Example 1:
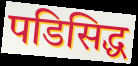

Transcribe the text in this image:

पडिसिद्ध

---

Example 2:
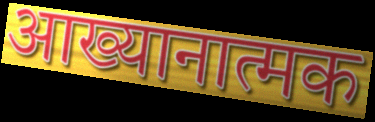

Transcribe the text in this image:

आख्यानात्मक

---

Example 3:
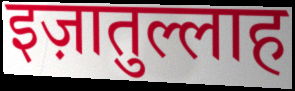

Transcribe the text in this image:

इज़ातुल्लाह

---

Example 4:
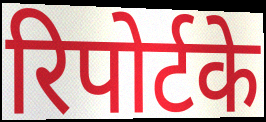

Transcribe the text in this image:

रिपोर्टके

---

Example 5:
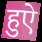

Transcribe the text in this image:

हुऐ